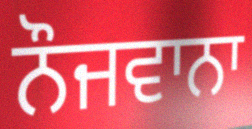
ਨੌਜਵਾਨਾ